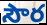
సౌర